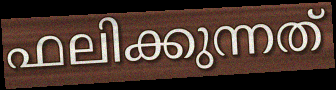
ഫലിക്കുന്നത്